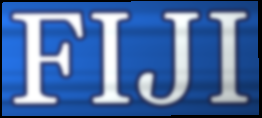
FIJI